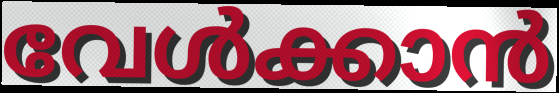
വേൾക്കാൻ